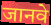
जानवे